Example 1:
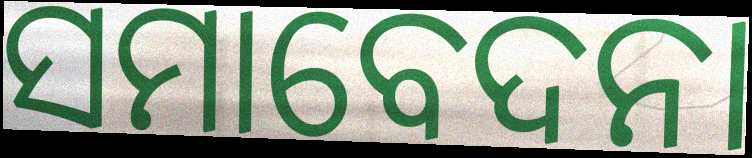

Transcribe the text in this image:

ସମାବେଦନା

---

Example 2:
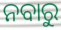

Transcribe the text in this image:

ନବାରୁ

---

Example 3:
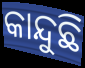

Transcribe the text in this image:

କାନ୍ଦୁଛି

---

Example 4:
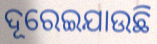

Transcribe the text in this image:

ଦୂରେଇଯାଉଛି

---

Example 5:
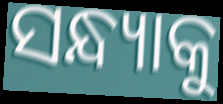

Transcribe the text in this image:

ସନ୍ଧ୍ୟାକୁ